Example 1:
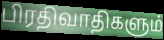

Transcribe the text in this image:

பிரதிவாதிகளும்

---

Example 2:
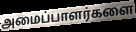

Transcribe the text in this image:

அமைப்பாளர்களை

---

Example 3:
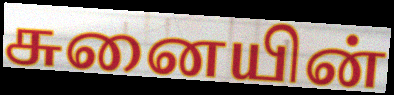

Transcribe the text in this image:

சுனையின்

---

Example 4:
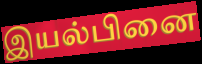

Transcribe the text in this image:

இயல்பினை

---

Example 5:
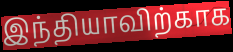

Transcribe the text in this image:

இந்தியாவிற்காக